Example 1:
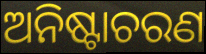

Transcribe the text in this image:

ଅନିଷ୍ଟାଚରଣ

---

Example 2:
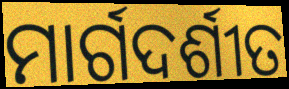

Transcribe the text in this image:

ମାର୍ଗଦର୍ଶୀତ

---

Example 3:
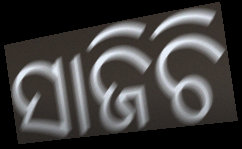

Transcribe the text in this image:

ସାଜିଚି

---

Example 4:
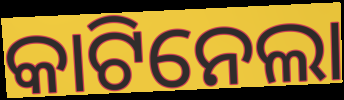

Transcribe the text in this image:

କାଟିନେଲା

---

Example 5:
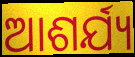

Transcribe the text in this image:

ଆଶର୍ଯ୍ୟ